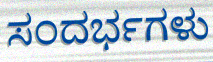
ಸಂದರ್ಭಗಳು